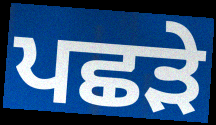
ਪਛੜੇ